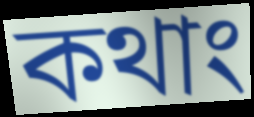
কথাং